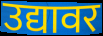
उद्यावर